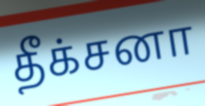
தீக்சனா